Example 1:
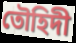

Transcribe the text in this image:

তৌহিদী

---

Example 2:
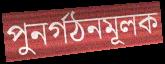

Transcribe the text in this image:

পুনর্গঠনমূলক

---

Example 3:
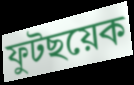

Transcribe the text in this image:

ফুটছয়েক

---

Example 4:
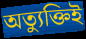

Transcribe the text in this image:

অত্যুক্তিই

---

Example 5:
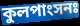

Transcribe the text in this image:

কুলপাংসনঃ